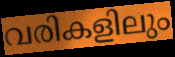
വരികളിലും